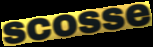
scosse